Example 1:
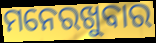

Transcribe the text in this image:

ମନେରଖୁବାର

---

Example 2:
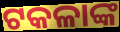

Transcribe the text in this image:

ଟକଳାଙ୍କ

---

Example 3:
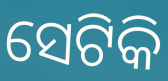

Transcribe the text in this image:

ସେଟିକି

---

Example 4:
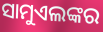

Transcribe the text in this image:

ସାମୁଏଲଙ୍କର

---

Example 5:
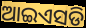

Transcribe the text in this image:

ଆଇଏସଡି